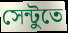
সেন্টুতে